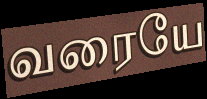
வரையே